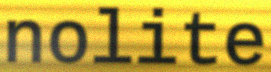
nolite